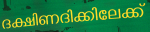
ദക്ഷിണദിക്കിലേക്ക്